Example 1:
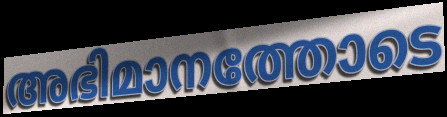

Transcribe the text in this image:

അഭിമാനത്തോടെ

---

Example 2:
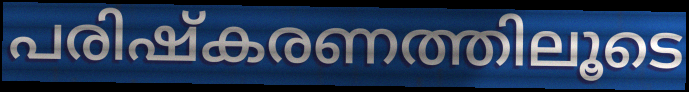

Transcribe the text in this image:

പരിഷ്കരണത്തിലൂടെ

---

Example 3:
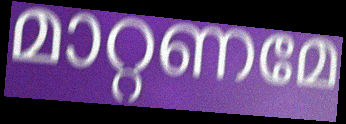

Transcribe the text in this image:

മാറ്റണമേ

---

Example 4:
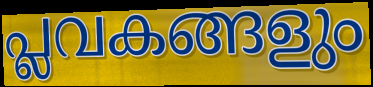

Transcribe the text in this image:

പ്ലവകങ്ങളും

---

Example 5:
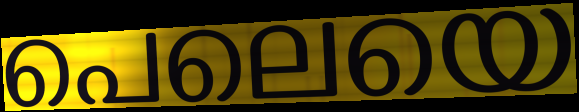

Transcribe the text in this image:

പെലെയെ